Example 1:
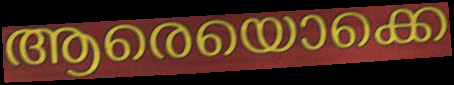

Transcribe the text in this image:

ആരെയൊക്കെ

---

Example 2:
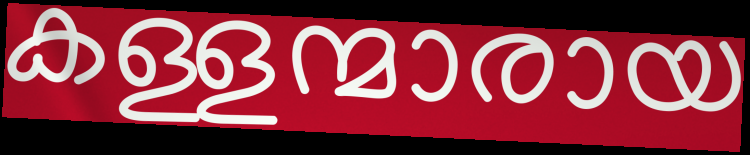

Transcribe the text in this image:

കള്ളന്മാരായ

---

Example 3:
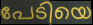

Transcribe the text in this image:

പേടിയെ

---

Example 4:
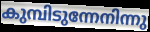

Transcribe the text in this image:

കുമ്പിടുന്നേനിന്നു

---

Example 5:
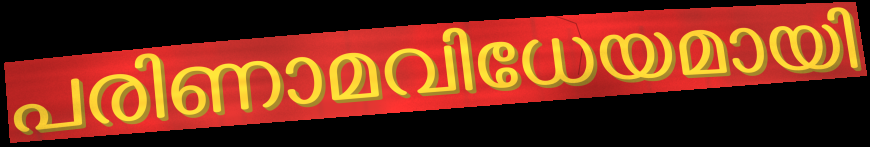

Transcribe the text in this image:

പരിണാമവിധേയമായി